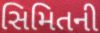
સિમિતની